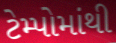
ટેમ્પોમાંથી